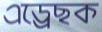
এড্ৰেছক